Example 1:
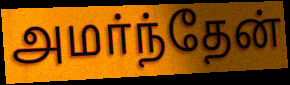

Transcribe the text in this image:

அமர்ந்தேன்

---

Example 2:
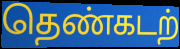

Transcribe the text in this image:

தெண்கடற்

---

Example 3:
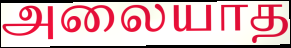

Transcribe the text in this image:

அலையாத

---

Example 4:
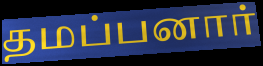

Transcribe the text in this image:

தமப்பனார்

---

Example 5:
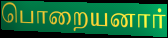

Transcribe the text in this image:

பொறையனார்